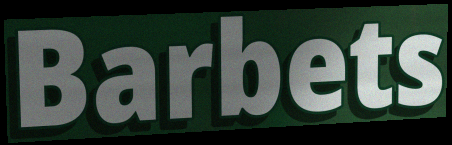
Barbets